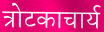
त्रोटकाचार्य